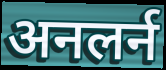
अनलर्न